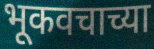
भूकवचाच्या